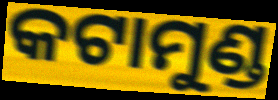
କଟାମୁଣ୍ଡ